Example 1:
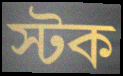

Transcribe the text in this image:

স্টক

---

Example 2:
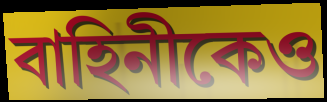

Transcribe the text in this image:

বাহিনীকেও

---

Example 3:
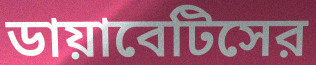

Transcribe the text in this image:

ডায়াবেটিসের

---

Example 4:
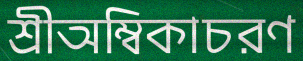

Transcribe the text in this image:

শ্রীঅম্বিকাচরণ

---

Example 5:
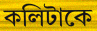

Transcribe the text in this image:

কলিটাকে